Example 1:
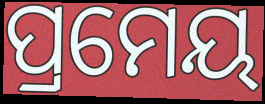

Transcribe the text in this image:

ପ୍ରମେୟ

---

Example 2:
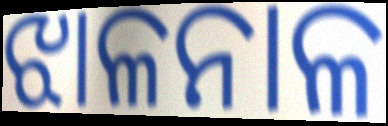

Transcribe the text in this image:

ଝାଳନାଳ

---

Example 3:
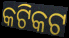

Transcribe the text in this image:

କଟିକଟ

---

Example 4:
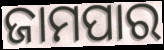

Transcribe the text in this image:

ଜାମପାର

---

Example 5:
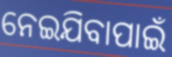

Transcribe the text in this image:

ନେଇଯିବାପାଇଁ